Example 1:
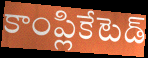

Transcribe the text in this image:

కాంప్లికేటెడ్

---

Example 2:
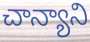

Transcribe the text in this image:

చాన్యాని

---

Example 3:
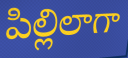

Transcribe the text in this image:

పిల్లిలాగా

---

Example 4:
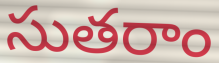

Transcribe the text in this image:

సుతరాం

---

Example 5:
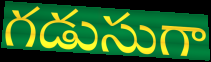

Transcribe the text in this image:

గడుసుగా